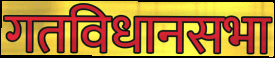
गतविधानसभा